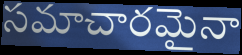
సమాచారమైనా